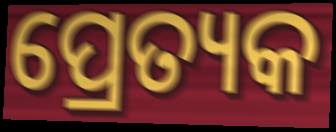
ପ୍ରେତ୍ୟକ